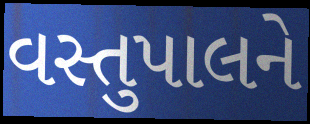
વસ્તુપાલને